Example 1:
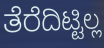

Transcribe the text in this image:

ತೆರೆದಿಟ್ಟಿಲ್ಲ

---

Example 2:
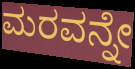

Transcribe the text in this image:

ಮರವನ್ನೇ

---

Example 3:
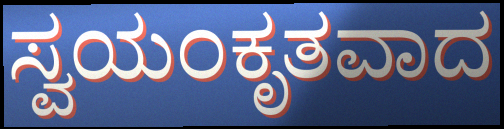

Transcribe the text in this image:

ಸ್ವಯಂಕೃತವಾದ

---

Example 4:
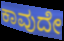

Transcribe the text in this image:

ಕಾವುದೇ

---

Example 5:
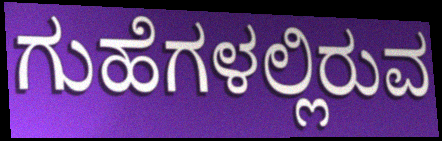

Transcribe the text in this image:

ಗುಹೆಗಳಲ್ಲಿರುವ